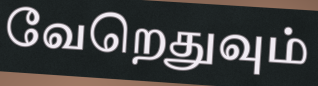
வேறெதுவும்